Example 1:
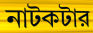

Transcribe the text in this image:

নাটকটার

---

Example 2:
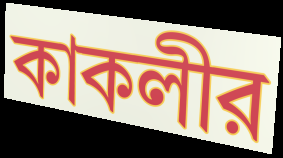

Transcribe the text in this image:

কাকলীর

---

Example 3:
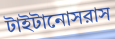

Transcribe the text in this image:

টাইটানোসরাস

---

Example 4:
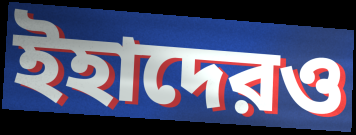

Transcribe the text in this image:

ইহাদেরও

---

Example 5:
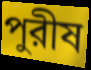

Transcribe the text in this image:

পুরীষ